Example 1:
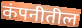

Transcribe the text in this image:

कंपनीतील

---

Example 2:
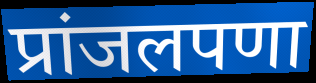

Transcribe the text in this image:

प्रांजलपणा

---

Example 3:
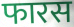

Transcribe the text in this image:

फारस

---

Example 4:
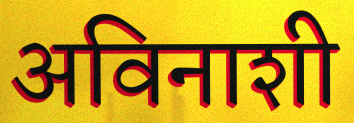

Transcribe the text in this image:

अविनाशी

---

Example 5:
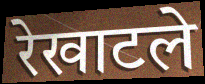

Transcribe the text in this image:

रेखाटले